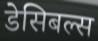
डेसिबल्स